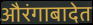
औरंगाबादेत